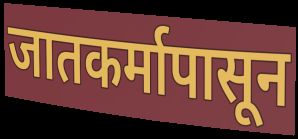
जातकर्मापासून